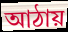
আঠায়